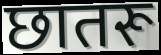
छातरू